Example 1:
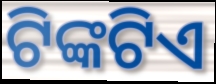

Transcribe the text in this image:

ଟିଙ୍କଟିଏ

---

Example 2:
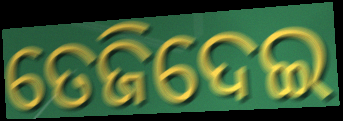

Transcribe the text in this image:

ତେଜିଦେଇ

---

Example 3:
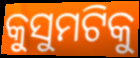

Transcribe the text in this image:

କୁସୁମଟିକୁ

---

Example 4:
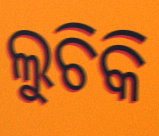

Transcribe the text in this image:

ଲୁଚିକି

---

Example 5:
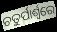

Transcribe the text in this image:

ଚତୁର୍ପାର୍ଶ୍ୱରେ